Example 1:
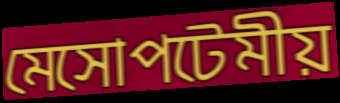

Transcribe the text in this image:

মেসোপটেমীয়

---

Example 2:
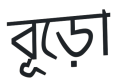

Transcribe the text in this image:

বূড়ো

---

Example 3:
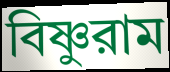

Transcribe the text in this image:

বিষ্ণুরাম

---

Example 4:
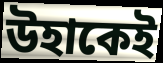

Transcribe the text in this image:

উহাকেই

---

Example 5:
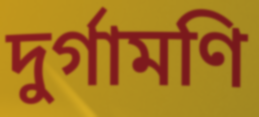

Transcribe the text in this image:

দুর্গামণি